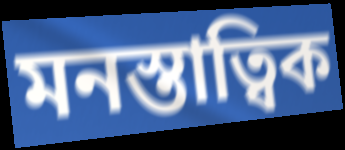
মনস্তাত্বিক